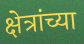
क्षेत्रांच्या